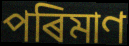
পৰিমাণ